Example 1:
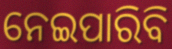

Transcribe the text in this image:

ନେଇପାରିବି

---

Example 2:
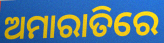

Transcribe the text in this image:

ଅମାରାତିରେ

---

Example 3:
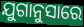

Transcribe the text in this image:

ଯୁଗାନୁସାରେ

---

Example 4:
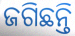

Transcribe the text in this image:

ଜଗିଛନ୍ତି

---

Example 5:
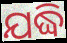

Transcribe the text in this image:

ଯଦ୍ଧି